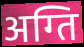
अग्ति